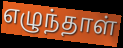
எழுந்தாள்